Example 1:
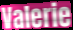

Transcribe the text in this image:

Valerie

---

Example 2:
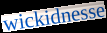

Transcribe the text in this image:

wickidnesse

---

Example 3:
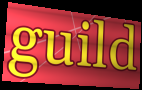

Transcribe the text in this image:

guild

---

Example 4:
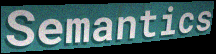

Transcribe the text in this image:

Semantics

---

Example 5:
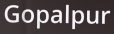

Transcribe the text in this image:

Gopalpur